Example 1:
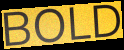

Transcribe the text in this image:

BOLD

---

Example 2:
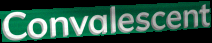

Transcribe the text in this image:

Convalescent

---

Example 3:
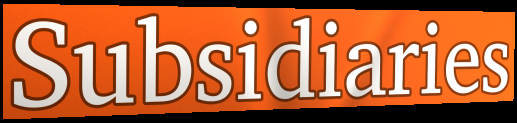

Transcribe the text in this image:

Subsidiaries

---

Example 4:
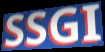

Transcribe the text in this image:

SSGI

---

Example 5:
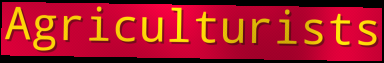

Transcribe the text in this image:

Agriculturists